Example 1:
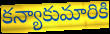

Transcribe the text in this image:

కన్యాకుమారికి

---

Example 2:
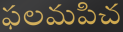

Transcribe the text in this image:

ఫలమపిచ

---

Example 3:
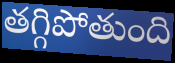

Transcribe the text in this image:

తగ్గిపోతుంది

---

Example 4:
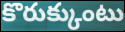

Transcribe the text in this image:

కొరుక్కుంటు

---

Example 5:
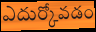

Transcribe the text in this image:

ఎదుర్కోవడం